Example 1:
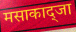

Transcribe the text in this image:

मसाकाद्जा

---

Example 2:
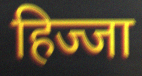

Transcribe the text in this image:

हिज्जा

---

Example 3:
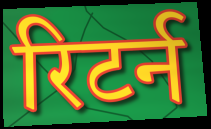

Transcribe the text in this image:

रिटर्न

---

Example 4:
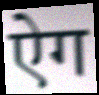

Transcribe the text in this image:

ऐग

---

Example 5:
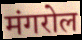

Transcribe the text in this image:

मंगरोल